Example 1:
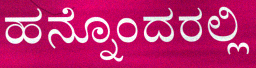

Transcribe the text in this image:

ಹನ್ನೊಂದರಲ್ಲಿ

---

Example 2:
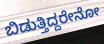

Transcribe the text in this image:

ಬಿಡುತ್ತಿದ್ದರೇನೋ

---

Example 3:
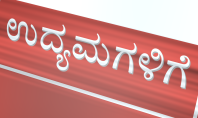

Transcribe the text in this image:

ಉದ್ಯಮಗಳಿಗೆ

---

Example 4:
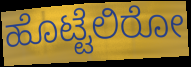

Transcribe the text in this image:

ಹೊಟ್ಟೆಲಿರೋ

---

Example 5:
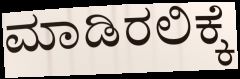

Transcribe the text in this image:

ಮಾಡಿರಲಿಕ್ಕೆ